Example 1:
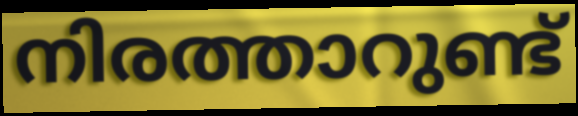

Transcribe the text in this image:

നിരത്താറുണ്ട്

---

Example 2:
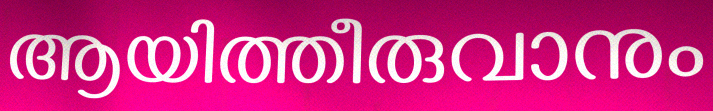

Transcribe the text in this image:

ആയിത്തീരുവാനും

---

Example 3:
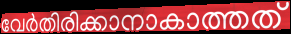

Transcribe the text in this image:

വേർതിരിക്കാനാകാത്തത്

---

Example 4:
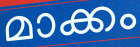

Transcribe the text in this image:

മാക്കം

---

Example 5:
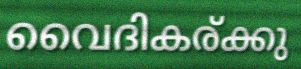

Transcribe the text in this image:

വൈദികര്ക്കു